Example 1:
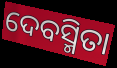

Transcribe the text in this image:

ଦେବସ୍ମିତା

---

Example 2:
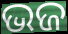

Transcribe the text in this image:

ଭଜ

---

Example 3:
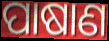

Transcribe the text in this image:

ପାଷାଣ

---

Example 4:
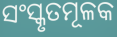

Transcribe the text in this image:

ସଂସ୍କୃତମୂଳକ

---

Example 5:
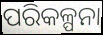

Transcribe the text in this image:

ପରିକଳ୍ପନା